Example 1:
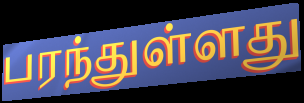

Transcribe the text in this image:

பரந்துள்ளது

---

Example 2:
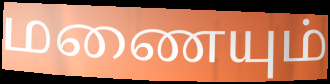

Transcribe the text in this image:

மணையும்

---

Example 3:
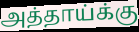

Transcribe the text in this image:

அத்தாய்க்கு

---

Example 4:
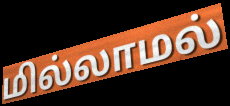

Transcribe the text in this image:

மில்லாமல்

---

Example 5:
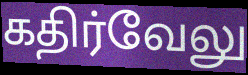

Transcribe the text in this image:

கதிர்வேலு